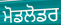
ਮੋਡਲੋਡਰ